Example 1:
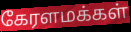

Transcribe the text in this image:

கேரளமக்கள்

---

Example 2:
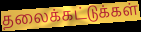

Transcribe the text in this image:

தலைக்கட்டுக்கள்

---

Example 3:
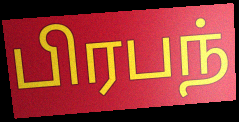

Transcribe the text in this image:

பிரபந்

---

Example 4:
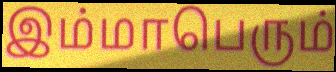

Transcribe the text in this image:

இம்மாபெரும்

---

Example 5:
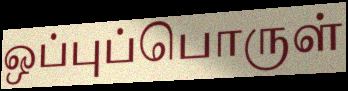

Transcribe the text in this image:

ஒப்புப்பொருள்